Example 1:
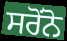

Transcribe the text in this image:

ਸਰੋਂਨੋ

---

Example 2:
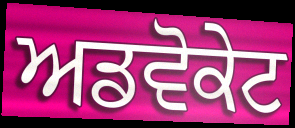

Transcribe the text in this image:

ਅਡਵੋਕੇਟ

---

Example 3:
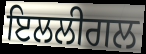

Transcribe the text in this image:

ਇਲਲੀਗਲ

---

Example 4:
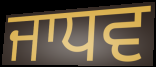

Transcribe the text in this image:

ਜਾਧਵ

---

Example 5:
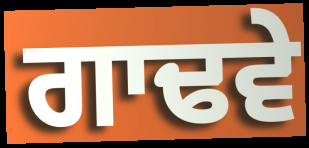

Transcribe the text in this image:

ਗਾਢਵੇ